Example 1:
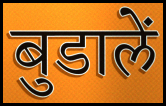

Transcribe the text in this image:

बुडालें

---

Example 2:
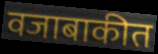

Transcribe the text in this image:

वजाबाकीत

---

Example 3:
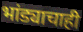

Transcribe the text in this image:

भांड्याचाही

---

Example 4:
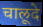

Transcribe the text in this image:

चालूदे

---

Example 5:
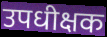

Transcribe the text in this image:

उपधीक्षक